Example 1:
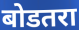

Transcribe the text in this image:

बोडतरा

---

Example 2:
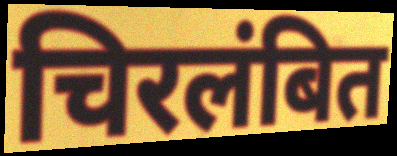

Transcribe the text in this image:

चिरलंबित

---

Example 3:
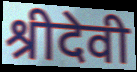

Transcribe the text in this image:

श्रीदेवी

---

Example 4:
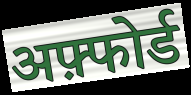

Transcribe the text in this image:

अफ़्फोर्ड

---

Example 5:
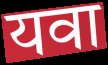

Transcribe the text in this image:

यवा